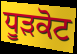
ਧੂੜਕੋਟ